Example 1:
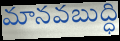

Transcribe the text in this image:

మానవబుద్ధి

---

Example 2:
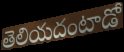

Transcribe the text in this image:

తెలియదంటాడో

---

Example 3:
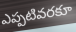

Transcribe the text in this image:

ఎప్పటివరకూ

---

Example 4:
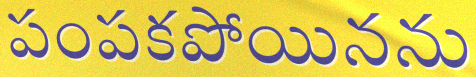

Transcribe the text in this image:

పంపకపోయినను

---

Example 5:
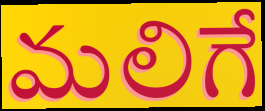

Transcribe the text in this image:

మలిగే